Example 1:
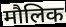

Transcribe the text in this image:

मौलिक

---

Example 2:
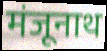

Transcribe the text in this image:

मंजूनाथ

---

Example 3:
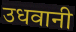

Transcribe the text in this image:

उधवानी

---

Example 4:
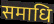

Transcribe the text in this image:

समाधि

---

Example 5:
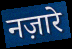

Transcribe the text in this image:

नज़ारे